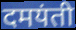
दमयंती